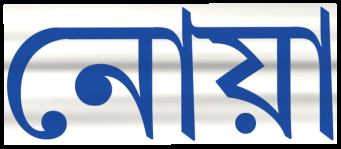
নোয়া